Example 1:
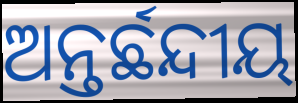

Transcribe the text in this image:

ଅନ୍ତର୍ଛନ୍ଦୀୟ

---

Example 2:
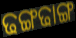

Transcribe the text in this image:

ଢଙ୍ଗଢାଙ୍ଗ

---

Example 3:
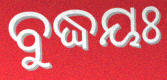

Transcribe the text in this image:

ବୁଦ୍ଧୟଃ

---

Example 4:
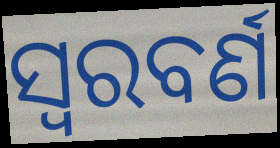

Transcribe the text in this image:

ସ୍ଵରବର୍ଣ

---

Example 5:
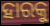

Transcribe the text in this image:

ହାରକୁ